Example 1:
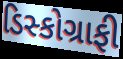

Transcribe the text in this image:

ડિસ્કોગ્રાફી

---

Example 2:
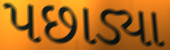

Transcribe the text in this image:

પછાડ્યા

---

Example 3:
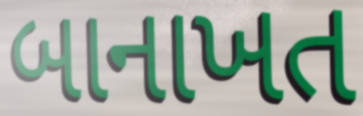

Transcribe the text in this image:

બાનાખત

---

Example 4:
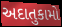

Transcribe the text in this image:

અદાતુકામો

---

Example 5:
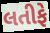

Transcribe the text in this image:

લતીફે